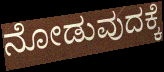
ನೋಡುವುದಕ್ಕೆ